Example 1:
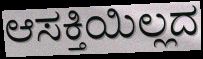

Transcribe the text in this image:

ಆಸಕ್ತಿಯಿಲ್ಲದ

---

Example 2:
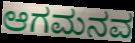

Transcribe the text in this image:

ಆಗಮನವ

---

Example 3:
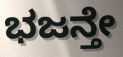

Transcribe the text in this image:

ಭಜನ್ತೇ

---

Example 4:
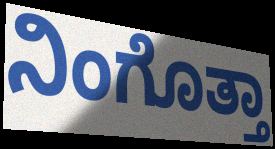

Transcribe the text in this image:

ನಿಂಗೊತ್ತಾ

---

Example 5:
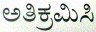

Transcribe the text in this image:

ಅತಿಕ್ರಮಿಸಿ